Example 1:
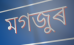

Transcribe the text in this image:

মগজুৰ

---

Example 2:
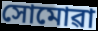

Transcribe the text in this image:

সোমোৱা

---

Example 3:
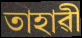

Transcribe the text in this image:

তাহাৱী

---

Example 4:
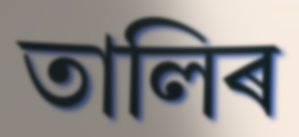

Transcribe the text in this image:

তালিৰ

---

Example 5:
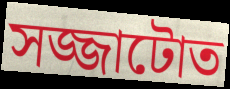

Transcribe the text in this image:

সজ্জাটোত